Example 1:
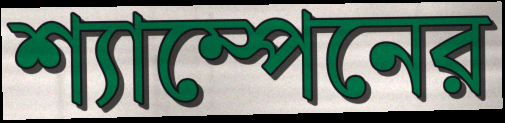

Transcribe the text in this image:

শ্যাম্পেনের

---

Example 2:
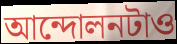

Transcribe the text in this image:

আন্দোলনটাও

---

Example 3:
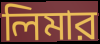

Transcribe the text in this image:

লিমার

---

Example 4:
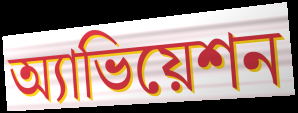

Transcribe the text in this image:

অ্যাভিয়েশন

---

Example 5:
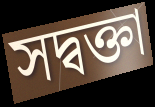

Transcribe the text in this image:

সদ্বক্তা